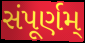
સંપૂર્ણમ્